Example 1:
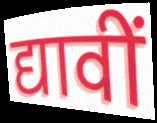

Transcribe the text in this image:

द्यावीं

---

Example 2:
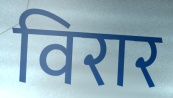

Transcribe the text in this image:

विरार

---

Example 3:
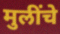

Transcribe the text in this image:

मुलींचे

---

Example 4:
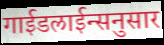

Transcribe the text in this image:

गाईडलाईन्सनुसार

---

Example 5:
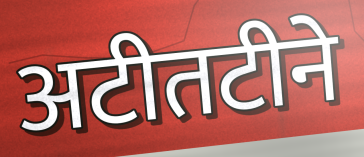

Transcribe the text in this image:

अटीतटीने